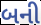
બની